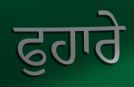
ਫੁਹਾਰੇ